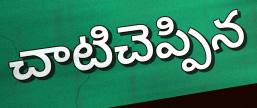
చాటిచెప్పిన